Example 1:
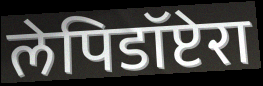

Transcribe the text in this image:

लेपिडॉप्टेरा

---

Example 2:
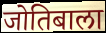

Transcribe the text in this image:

जोतिबाला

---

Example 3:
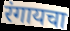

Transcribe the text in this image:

रंगायचा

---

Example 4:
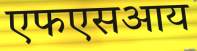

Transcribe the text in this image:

एफएसआय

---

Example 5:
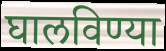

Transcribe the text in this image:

घालविण्या